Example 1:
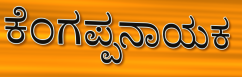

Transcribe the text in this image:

ಕೆಂಗಪ್ಪನಾಯಕ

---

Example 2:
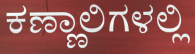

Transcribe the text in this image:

ಕಣ್ಣಾಲಿಗಳಲ್ಲಿ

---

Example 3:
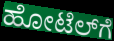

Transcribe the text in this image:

ಹೋಟೆಲ್‌ಗೆ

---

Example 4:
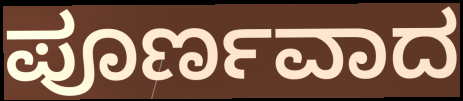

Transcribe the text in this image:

ಪೂರ್ಣವಾದ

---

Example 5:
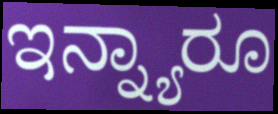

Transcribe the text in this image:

ಇನ್ನ್ಯಾರೂ